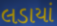
લડાયાં